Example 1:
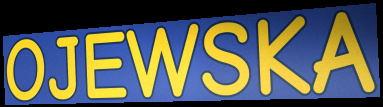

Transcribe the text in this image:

OJEWSKA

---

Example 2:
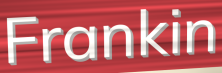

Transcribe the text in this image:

Frankin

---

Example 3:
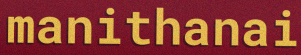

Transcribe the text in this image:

manithanai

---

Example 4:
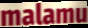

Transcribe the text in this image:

malamu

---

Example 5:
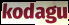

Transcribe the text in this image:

kodagu